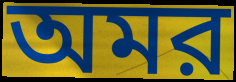
অমর